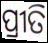
ପ୍ରୀତି